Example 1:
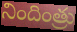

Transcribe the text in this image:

నిందింత్రు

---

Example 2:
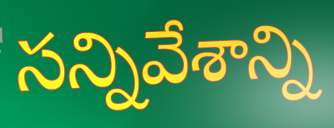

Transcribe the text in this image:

సన్నివేశాన్ని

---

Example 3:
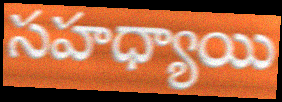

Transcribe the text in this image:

సహధ్యాయి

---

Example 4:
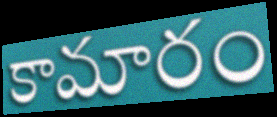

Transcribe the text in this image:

కామారం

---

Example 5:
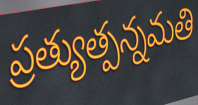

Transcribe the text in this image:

ప్రత్యుత్పన్నమతి